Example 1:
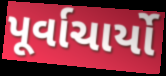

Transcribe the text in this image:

પૂર્વાચાર્યો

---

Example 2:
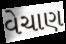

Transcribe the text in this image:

વેચાણ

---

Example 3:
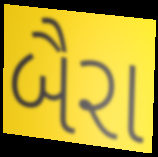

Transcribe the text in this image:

બૈરા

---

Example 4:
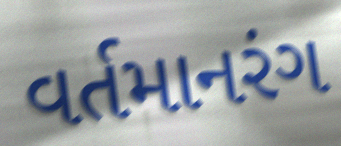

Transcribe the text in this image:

વર્તમાનરંગ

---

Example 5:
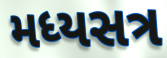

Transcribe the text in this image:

મધ્યસત્ર